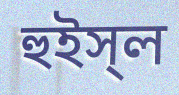
হুইস্‌ল